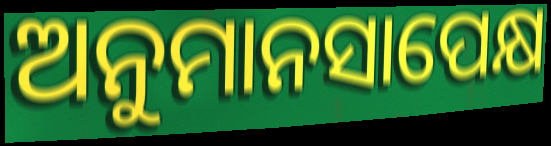
ଅନୁମାନସାପେକ୍ଷ